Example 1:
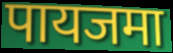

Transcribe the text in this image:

पायजमा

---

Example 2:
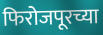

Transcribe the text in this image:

फिरोजपूरच्या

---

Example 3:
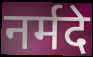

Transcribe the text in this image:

नर्मदे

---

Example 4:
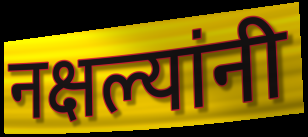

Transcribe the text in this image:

नक्षल्यांनी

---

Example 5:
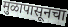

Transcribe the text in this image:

मुळापासूनचा